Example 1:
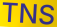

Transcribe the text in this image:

TNS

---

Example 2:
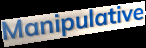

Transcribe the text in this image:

Manipulative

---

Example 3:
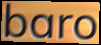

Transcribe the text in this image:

baro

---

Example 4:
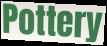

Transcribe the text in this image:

Pottery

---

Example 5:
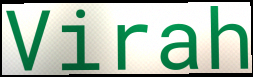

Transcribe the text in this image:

Virah